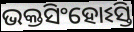
ଭକ୍ତସିଂହୋଽସ୍ତି